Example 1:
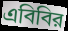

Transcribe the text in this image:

এবিবির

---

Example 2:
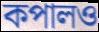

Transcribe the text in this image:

কপালও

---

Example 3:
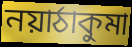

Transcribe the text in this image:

নয়াঠাকুমা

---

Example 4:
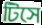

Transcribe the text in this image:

টিসে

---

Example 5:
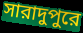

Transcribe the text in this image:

সারাদুপুরে